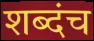
शब्दंच